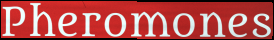
Pheromones